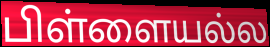
பிள்ளையல்ல